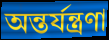
অন্তর্যন্ত্রণা